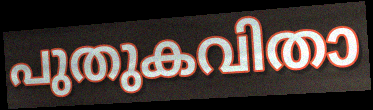
പുതുകവിതാ